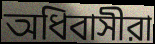
অধিবাসীরা